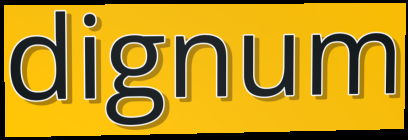
dignum